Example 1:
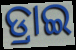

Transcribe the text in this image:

ଡ୍ରାଇ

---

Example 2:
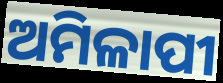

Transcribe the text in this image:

ଅମିଳାପୀ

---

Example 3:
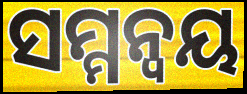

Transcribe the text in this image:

ସମ୍ମନ୍ୱୟ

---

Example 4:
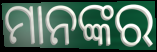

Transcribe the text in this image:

ମାନଙ୍କର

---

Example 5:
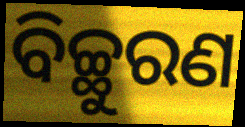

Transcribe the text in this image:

ବିଚ୍ଛୁରଣ